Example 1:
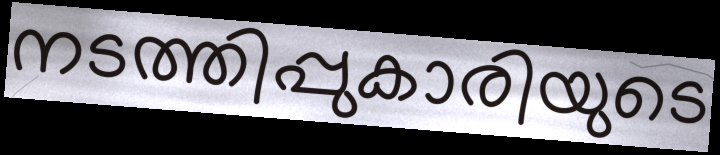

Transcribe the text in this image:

നടത്തിപ്പുകാരിയുടെ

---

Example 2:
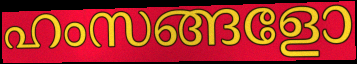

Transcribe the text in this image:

ഹംസങ്ങളോ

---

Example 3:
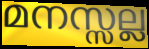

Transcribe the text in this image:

മനസ്സല്ല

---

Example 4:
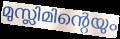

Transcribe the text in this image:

മുസ്ലിമിന്റെയും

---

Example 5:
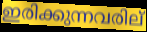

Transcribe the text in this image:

ഇരിക്കുന്നവരില്